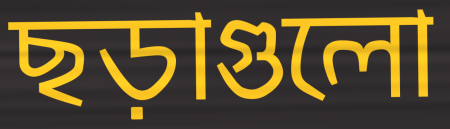
ছড়াগুলো